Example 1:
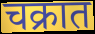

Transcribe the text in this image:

चक्रात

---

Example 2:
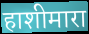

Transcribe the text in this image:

हाशीमारा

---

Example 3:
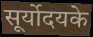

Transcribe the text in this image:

सूर्योदयके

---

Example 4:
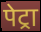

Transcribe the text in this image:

पेट्रा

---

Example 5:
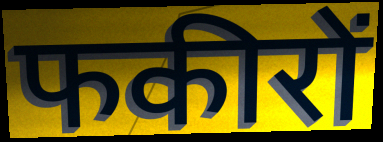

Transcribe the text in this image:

फकीरों